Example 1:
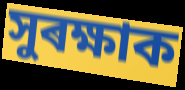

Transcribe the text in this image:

সুৰক্ষাক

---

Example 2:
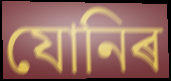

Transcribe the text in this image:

যোনিৰ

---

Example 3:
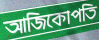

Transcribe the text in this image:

আজিকোপতি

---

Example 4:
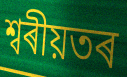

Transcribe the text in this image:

শ্বৰীয়তৰ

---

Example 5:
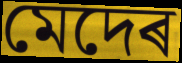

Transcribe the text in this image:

মেদেৰ